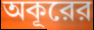
অকূরের